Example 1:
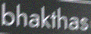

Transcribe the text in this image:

bhakthas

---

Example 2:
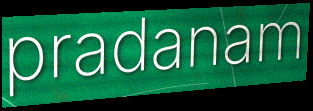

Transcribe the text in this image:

pradanam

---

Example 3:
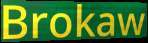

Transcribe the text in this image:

Brokaw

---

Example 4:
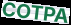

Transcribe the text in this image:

COTPA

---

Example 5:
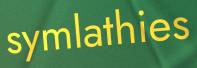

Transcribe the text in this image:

symlathies